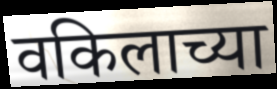
वकिलाच्या